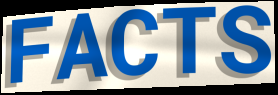
FACTS